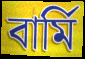
বার্মি